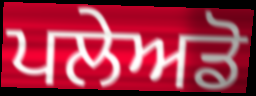
ਪਲੇਅਡੋ